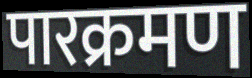
पारक्रमण